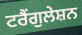
ਟਰੈਂਗੁਲੇਸ਼ਨ